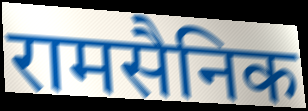
रामसैनिक